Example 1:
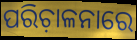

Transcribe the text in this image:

ପରିଚ଼ାଳନାରେ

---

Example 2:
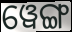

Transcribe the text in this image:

ୱେଙ୍ଗ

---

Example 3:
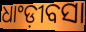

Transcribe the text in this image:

ଧାଂଡ଼ୀବସା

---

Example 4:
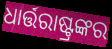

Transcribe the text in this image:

ଧାର୍ତ୍ତରାଷ୍ଟ୍ରଙ୍କର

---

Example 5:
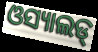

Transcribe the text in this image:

ଓସ୍ୟାଲଡ୍